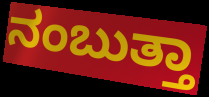
ನಂಬುತ್ತಾ